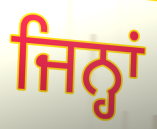
ਜਿਨ੍ਹਾਂ